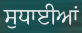
ਸੁਧਾਈਆਂ